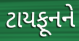
ટાયફૂનને